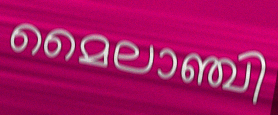
മൈലാഞ്ചി